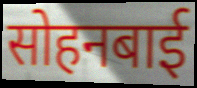
सोहनबाई